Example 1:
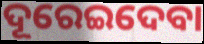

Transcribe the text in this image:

ଦୂରେଇଦେବା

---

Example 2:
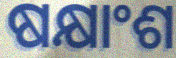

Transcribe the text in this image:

ଷକ୍ଷାଂଶ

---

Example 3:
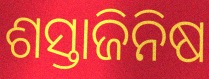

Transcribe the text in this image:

ଶସ୍ତାଜିନିଷ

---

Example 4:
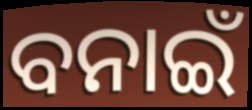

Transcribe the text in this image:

ବନାଇଁ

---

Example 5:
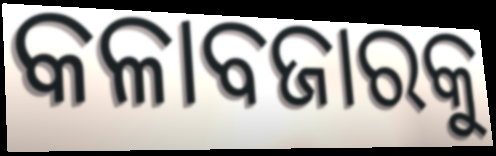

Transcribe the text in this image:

କଳାବଜାରକୁ